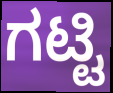
ಗಟ್ಟಿ